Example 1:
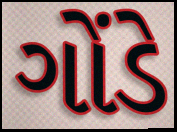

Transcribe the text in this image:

ગોંડે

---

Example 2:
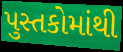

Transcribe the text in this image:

પુસ્તકોમાંથી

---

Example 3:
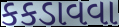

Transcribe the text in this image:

કકડાવવા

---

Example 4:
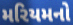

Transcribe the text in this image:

મરિયમનો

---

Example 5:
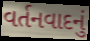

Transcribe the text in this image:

વર્તનવાદનું